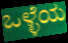
ಒಳ್ಳೆಯ